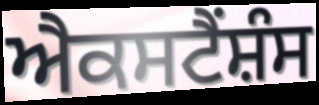
ਐਕਸਟੈਂਸ਼ੰਸ